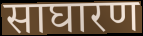
साघारण